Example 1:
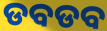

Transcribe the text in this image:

ଡବଡବ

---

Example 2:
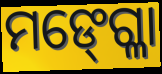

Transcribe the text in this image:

ମଙ୍ଗ୍ଳୋ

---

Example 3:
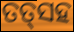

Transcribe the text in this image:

ତତ୍‌ସହ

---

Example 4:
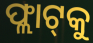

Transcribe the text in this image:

ଫ୍ଲାଟ୍‌କୁ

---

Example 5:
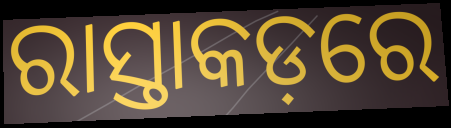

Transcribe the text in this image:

ରାସ୍ତାକଡ଼ରେ